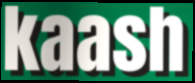
kaash